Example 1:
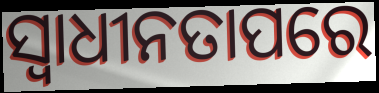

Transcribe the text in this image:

ସ୍ୱାଧୀନତାପରେ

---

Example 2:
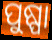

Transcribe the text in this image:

ପୁଷ୍ପା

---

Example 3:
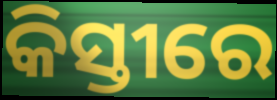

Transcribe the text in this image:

କିସ୍ତୀରେ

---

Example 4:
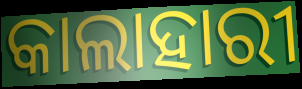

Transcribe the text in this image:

କାଲାହାରୀ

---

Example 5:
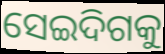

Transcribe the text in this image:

ସେଇଦିଗକୁ